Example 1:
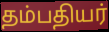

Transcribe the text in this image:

தம்பதியர்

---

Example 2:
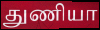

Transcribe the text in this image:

துணியா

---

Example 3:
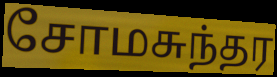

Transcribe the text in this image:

சோமசுந்தர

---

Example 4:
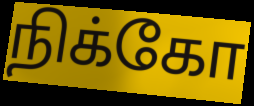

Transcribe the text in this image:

நிக்கோ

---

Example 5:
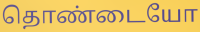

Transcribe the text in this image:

தொண்டையோ